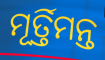
ମୂର୍ତ୍ତିମନ୍ତ